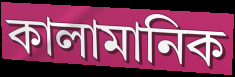
কালামানিক